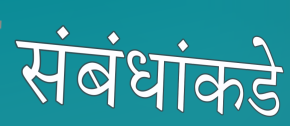
संबंधांकडे